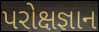
પરોક્ષજ્ઞાન